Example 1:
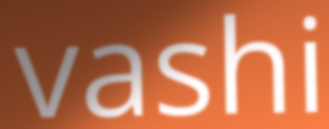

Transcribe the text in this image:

vashi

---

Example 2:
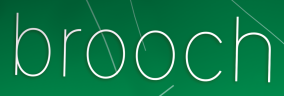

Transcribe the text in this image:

brooch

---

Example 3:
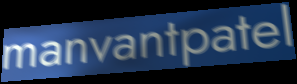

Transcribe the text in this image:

manvantpatel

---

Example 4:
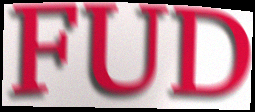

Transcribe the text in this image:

FUD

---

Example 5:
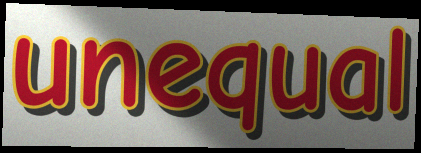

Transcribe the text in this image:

unequal